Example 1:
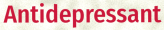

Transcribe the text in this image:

Antidepressant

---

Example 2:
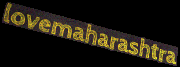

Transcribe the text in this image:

lovemaharashtra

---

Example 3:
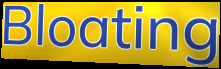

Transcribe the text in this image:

Bloating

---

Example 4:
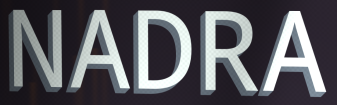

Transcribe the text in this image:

NADRA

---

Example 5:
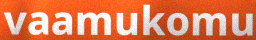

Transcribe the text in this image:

vaamukomu